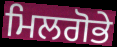
ਮਿਲਗੋਭੇ